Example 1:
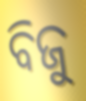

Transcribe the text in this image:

ବିଜୁ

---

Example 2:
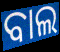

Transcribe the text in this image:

ବାଲ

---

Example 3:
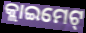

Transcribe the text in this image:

କ୍ଲାଇମେଟ୍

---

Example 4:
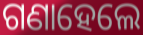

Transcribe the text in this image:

ଗଣାହେଲେ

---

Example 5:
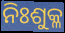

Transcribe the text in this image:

ନିଃଶୁକ୍ଳ